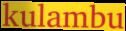
kulambu